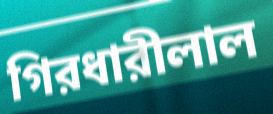
গিরধারীলাল